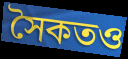
সৈকতও